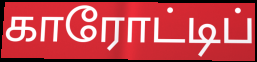
காரோட்டிப்